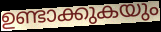
ഉണ്ടാക്കുകയും